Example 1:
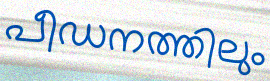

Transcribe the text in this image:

പീഡനത്തിലും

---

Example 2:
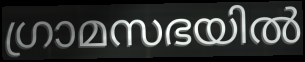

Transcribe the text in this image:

ഗ്രാമസഭയിൽ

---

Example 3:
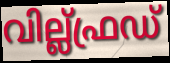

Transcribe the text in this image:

വില്ല്ഫ്രഡ്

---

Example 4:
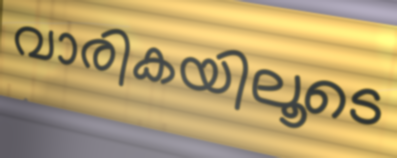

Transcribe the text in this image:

വാരികയിലൂടെ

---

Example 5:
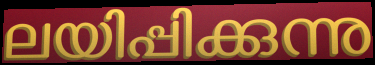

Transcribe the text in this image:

ലയിപ്പിക്കുന്നു